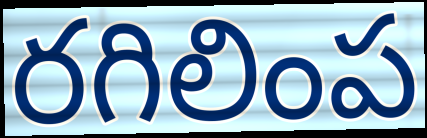
రగిలింప